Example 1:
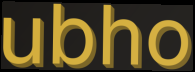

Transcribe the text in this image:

ubho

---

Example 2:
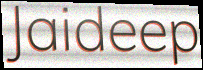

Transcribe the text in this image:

Jaideep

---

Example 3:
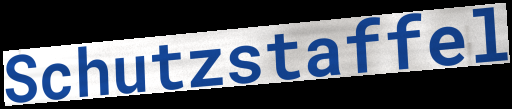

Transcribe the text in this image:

Schutzstaffel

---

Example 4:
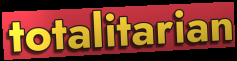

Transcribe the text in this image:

totalitarian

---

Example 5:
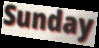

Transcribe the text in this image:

Sunday